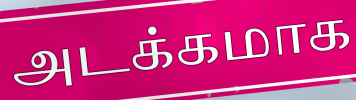
அடக்கமாக